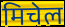
मिचेल